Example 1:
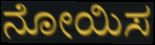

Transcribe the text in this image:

ನೋಯಿಸ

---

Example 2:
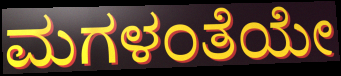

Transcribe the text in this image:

ಮಗಳಂತೆಯೇ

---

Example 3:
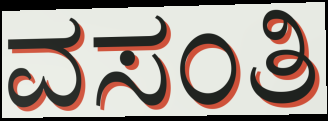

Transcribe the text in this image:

ವಸಂತಿ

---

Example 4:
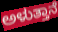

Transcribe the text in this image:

ಅಳುತ್ತಾನೆ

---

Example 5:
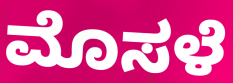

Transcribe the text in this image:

ಮೊಸಳೆ